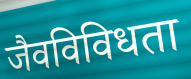
जैवविविधता